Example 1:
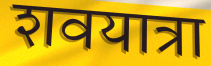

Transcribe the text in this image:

शवयात्रा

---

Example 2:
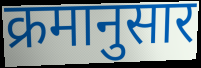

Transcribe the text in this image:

क्रमानुसार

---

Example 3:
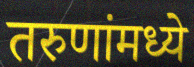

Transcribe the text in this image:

तरुणांमध्ये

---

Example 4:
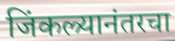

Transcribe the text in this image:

जिंकल्यानंतरचा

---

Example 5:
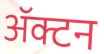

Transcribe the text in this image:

ॲक्टन